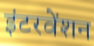
इंटरवेंशन